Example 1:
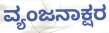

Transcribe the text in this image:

ವ್ಯಂಜನಾಕ್ಷರ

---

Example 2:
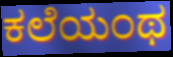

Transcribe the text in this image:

ಕಲೆಯಂಥ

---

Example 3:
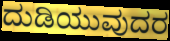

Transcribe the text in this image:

ದುಡಿಯುವುದರ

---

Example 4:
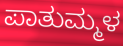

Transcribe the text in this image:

ಪಾತುಮ್ಮಳ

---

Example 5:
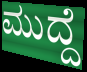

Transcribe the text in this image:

ಮುದ್ದೆ